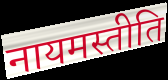
नायमस्तीति